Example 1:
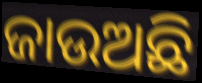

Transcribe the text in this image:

ଜାଉଅଛି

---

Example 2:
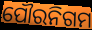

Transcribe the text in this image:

ପୌରନିଗମ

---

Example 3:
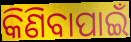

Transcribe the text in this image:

କିଣିବାପାଇଁ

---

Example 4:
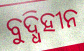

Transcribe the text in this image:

ବୁଦ୍ଧିହୀନ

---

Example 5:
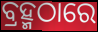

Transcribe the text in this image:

ବ୍ରହ୍ମଠାରେ